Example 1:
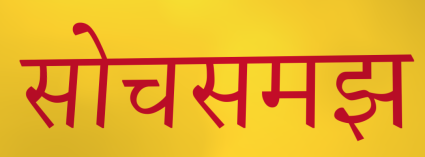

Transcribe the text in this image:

सोचसमझ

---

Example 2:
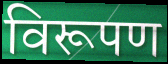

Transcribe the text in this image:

विरूपण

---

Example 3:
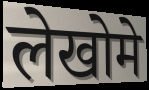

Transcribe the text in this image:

लेखोमे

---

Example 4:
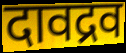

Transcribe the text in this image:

दावद्रव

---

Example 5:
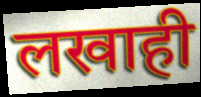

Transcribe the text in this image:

लखाही